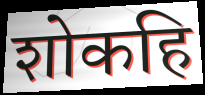
शोकहि